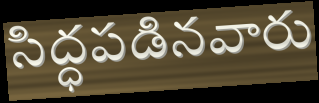
సిద్ధపడినవారు